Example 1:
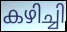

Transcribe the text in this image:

കഴിച്ചി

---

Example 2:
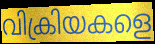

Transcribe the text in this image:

വിക്രിയകളെ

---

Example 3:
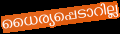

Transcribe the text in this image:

ധൈര്യപ്പെടാറില്ല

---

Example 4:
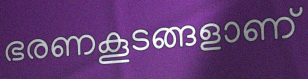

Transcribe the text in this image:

ഭരണകൂടങ്ങളാണ്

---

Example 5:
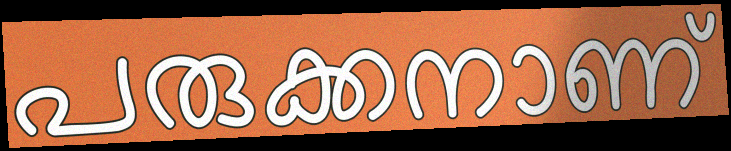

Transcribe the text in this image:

പരുക്കനാണ്